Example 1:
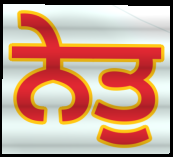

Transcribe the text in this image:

ਨੇਤੁ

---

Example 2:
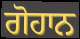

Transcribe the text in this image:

ਗੋਹਾਨ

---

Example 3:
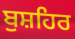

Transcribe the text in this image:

ਬੁਸ਼ਹਿਰ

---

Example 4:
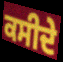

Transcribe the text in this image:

ਕਸੀਦੇ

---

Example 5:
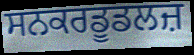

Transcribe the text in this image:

ਸਨਕਰਡੂਡਲਜ਼